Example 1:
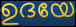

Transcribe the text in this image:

ഉദയേ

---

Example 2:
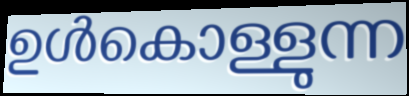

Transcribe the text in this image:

ഉൾകൊള്ളുന്ന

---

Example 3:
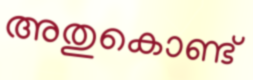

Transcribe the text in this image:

അതുകൊണ്ട്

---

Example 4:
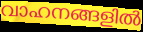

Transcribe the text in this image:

വാഹനങ്ങളിൽ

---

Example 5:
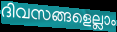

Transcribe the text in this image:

ദിവസങ്ങളെല്ലാം